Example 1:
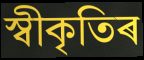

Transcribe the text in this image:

স্বীকৃতিৰ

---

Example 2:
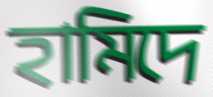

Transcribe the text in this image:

হামিদে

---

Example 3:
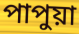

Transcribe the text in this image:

পাপুয়া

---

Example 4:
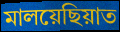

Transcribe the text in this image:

মালয়েছিয়াত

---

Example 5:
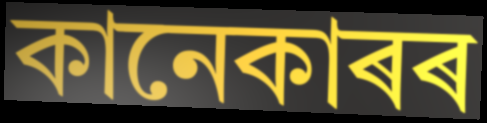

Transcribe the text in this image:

কানেকাৰৰ